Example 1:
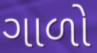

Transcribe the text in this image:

ગાળો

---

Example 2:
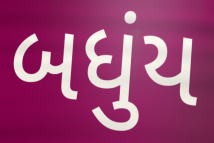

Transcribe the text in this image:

બધુંય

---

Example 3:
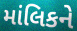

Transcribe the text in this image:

માંલિકને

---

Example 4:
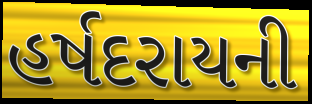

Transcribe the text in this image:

હર્ષદરાયની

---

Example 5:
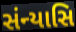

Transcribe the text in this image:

સંન્યાસિ